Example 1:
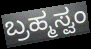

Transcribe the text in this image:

ಬ್ರಹ್ಮಸ್ವಂ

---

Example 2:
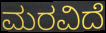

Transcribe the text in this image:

ಮರವಿದೆ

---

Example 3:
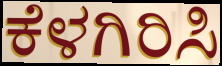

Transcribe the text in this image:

ಕೆಳಗಿರಿಸಿ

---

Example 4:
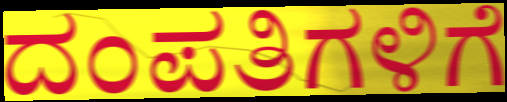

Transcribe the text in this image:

ದಂಪತಿಗಳಿಗೆ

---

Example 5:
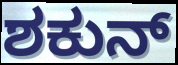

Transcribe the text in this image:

ಶಕುನ್